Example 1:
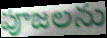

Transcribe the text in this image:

పూజలను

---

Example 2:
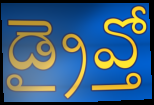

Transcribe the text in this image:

డ్రైవ్తో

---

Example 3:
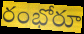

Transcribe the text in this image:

రంభోరూ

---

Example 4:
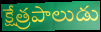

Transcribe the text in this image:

క్షేత్రపాలుడు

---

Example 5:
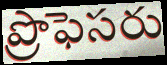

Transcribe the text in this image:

ప్రొఫెసరు